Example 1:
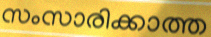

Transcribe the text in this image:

സംസാരിക്കാത്ത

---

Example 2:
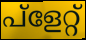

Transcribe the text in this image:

പ്ളേറ്റ്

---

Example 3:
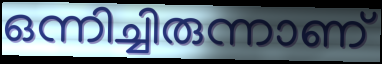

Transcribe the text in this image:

ഒന്നിച്ചിരുന്നാണ്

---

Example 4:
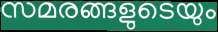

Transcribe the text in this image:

സമരങ്ങളുടെയും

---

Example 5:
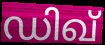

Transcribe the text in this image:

ഡിഖ്